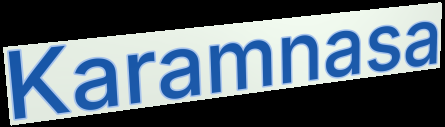
Karamnasa